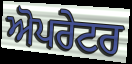
ਅੋਪਰੇਟਰ